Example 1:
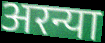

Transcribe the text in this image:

अरन्या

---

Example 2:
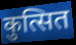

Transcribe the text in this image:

कुत्सित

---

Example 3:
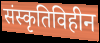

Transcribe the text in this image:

संस्कृतिविहीन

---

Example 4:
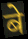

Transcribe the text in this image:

बे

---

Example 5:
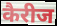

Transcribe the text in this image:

कैरीज